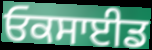
ਓਕਸਾਈਡ